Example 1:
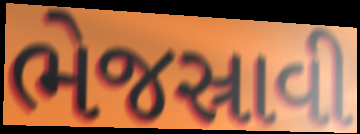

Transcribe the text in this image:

ભેજસ્રાવી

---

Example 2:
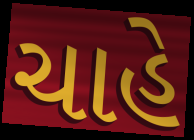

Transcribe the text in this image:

ચાહે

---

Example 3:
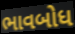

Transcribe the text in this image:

ભાવબોધ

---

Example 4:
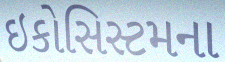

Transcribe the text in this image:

ઇકોસિસ્ટમના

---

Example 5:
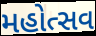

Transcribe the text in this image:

મહોત્સવ